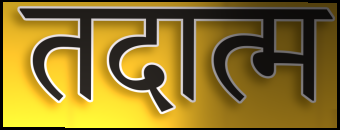
तदात्म